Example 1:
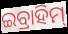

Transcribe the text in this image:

ଇବ୍ରାହିମ୍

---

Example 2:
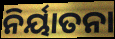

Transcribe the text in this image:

ନିର୍ୟାତନା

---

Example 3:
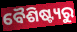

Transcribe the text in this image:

ବୈଶିଷ୍ଟ୍ୟରୁ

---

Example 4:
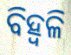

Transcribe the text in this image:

ବିହ୍ୱଳି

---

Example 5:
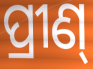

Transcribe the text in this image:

ପ୍ରୀଣ୍